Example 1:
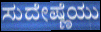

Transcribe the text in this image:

ಸುದೇಷ್ಣೆಯು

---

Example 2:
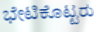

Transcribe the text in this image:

ಭೇಟಿಕೊಟ್ಟರು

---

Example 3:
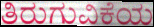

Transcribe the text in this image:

ತಿರುಗುವಿಕೆಯ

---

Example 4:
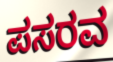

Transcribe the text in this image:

ಪಸರವ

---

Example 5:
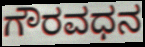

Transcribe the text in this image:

ಗೌರವಧನ